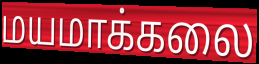
மயமாக்கலை